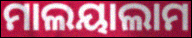
ମାଲୟାଲାମ